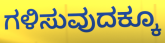
ಗಳಿಸುವುದಕ್ಕೂ